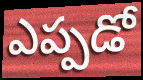
ఎప్పడో